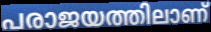
പരാജയത്തിലാണ്